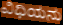
ವಿಧಿಯನು